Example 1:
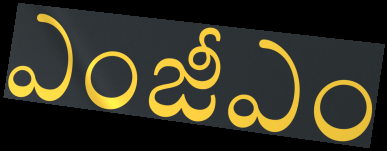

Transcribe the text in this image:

ఎంజీఎం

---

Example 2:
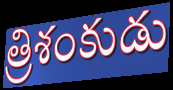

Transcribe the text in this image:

త్రిశంకుడు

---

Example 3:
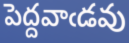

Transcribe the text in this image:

పెద్దవాఁడవు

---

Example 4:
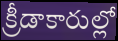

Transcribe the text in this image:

క్రీడాకారుల్లో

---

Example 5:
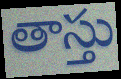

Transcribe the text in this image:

తాస్తు